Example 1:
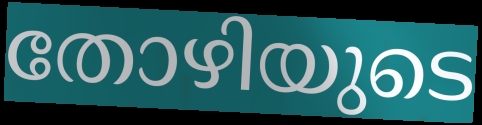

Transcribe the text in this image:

തോഴിയുടെ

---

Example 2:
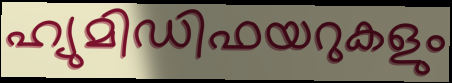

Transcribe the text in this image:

ഹ്യുമിഡിഫയറുകളും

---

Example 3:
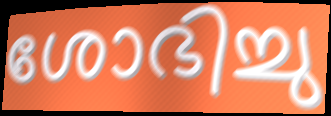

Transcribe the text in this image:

ശോഭിച്ചു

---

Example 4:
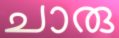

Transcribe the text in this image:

ചാരു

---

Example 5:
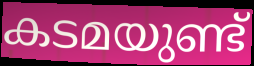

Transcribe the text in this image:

കടമയുണ്ട്